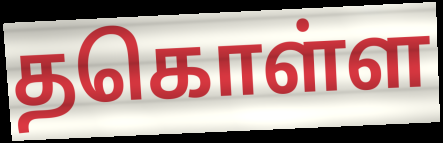
தகொள்ள